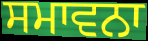
ਸਮਾਵਨਾ